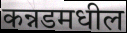
कन्नडमधील